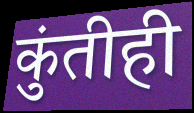
कुंतीही